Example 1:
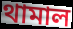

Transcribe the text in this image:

থামাল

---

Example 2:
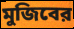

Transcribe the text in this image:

মুজিবের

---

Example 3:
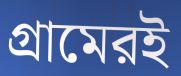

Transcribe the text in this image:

গ্রামেরই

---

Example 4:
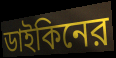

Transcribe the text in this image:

ডাইকিনের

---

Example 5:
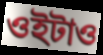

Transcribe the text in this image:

ওইটাও